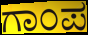
ಗಾಂಪ